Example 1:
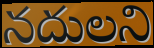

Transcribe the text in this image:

నదులని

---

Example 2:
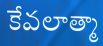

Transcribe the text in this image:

కేవలాత్మా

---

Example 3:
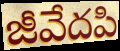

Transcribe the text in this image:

జీవేదపి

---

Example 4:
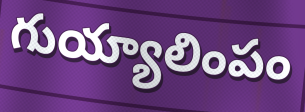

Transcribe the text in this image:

గుయ్యాలింపం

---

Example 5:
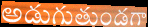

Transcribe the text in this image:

అడుగుతుండగా